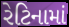
રેટિનામાં